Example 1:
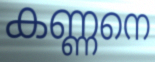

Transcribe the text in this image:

കണ്ണനെ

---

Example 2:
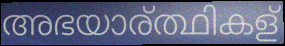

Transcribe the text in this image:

അഭയാര്ത്ഥികള്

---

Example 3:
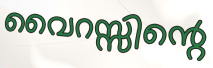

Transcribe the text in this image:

വൈറസ്സിന്റെ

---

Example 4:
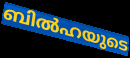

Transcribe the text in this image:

ബിൽഹയുടെ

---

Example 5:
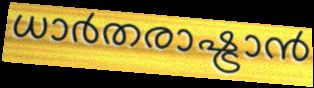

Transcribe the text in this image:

ധാർതരാഷ്ട്രാൻ